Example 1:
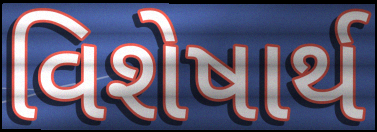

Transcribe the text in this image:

વિશેષાર્થ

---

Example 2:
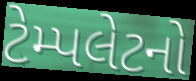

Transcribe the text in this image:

ટેમ્પલેટનો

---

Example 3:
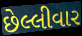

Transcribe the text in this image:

છેલ્લીવાર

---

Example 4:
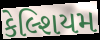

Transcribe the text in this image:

કેલ્શિયમ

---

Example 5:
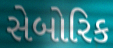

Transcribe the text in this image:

સેબોરિક